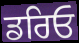
ਡਰਿਓ